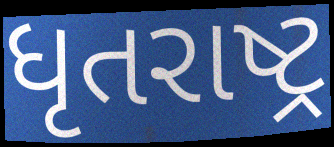
ધૃતરાષ્ટ્ર